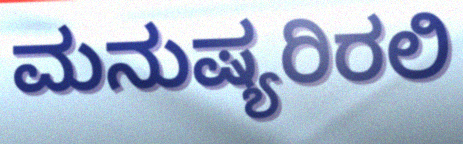
ಮನುಷ್ಯರಿರಲಿ